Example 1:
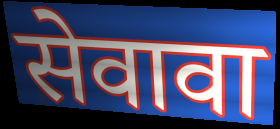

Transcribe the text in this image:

सेवावा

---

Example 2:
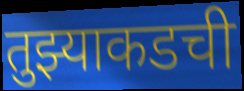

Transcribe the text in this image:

तुझ्याकडची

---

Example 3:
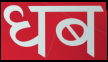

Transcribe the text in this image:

धब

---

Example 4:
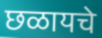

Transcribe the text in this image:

छळायचे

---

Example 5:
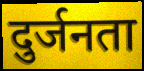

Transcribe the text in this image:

दुर्जनता